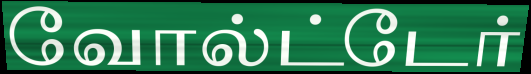
வோல்ட்டேர்